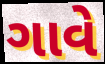
ગાવે